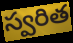
స్వరిత